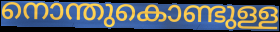
നൊന്തുകൊണ്ടുള്ള